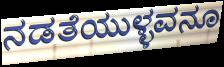
ನಡತೆಯುಳ್ಳವನೂ